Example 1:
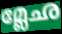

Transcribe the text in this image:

മ്ലേഛ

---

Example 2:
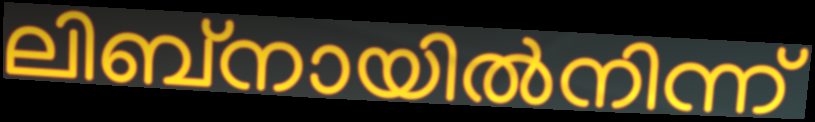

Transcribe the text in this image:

ലിബ്നായിൽനിന്ന്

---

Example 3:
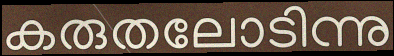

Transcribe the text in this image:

കരുതലോടിന്നു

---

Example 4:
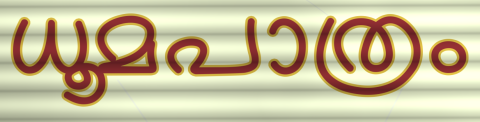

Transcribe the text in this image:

ധൂമപാത്രം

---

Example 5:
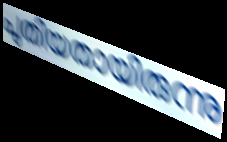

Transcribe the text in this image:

പുതിയതായിരുന്നു